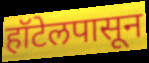
हॉटेलपासून